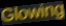
Glowing